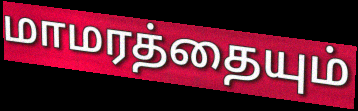
மாமரத்தையும்